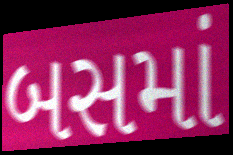
બસમાં